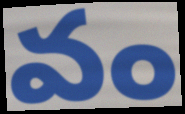
వం